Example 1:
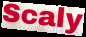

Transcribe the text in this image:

Scaly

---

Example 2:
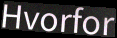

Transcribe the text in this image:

Hvorfor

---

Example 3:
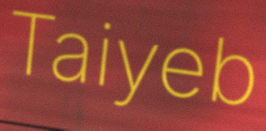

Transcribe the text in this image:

Taiyeb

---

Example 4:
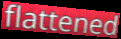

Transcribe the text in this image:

flattened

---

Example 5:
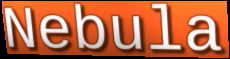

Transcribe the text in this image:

Nebula